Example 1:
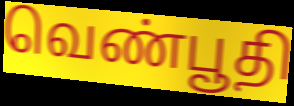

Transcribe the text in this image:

வெண்பூதி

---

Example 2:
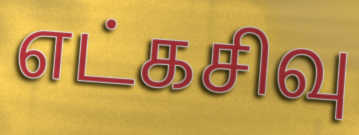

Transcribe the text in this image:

எட்கசிவு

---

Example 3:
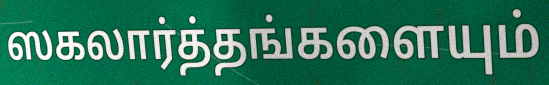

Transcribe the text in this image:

ஸகலார்த்தங்களையும்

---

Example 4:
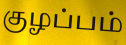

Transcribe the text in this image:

குழப்பம்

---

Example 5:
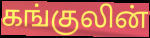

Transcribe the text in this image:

கங்குலின்